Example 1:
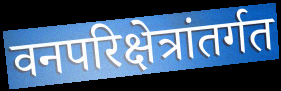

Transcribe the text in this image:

वनपरिक्षेत्रांतर्गत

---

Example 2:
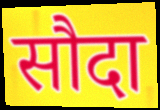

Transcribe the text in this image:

सौदा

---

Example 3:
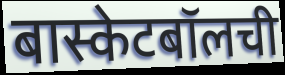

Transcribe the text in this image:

बास्केटबॉलची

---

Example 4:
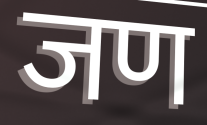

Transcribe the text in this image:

जण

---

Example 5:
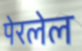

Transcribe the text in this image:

पेरलेल